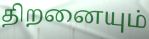
திறனையும்